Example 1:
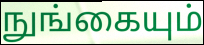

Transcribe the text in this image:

நுங்கையும்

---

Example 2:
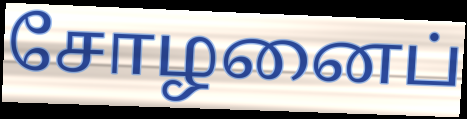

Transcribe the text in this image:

சோழனைப்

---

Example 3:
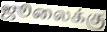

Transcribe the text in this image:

ஜூலைக்கு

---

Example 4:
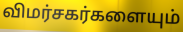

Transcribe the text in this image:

விமர்சகர்களையும்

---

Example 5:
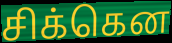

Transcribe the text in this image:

சிக்கென